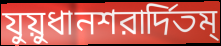
যুয়ুধানশরার্দিতম্